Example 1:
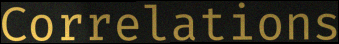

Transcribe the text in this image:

Correlations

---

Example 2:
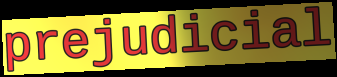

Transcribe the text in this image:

prejudicial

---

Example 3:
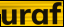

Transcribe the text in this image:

uraf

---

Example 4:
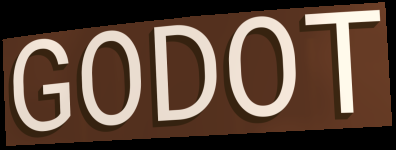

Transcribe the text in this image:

GODOT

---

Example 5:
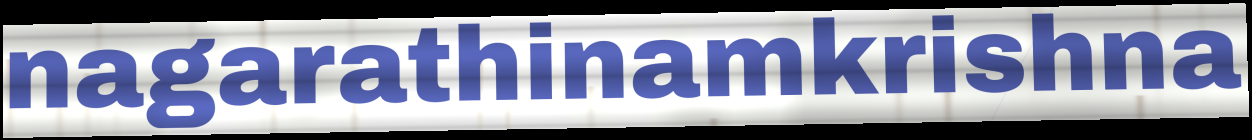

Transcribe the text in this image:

nagarathinamkrishna